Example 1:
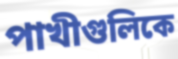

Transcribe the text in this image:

পাখীগুলিকে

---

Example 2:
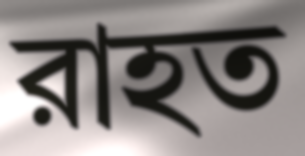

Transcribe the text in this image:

রাহত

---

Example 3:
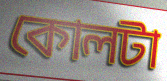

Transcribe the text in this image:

কোলটা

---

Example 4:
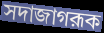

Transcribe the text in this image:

সদাজাগরূক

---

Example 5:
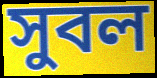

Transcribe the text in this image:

সুবল